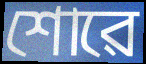
শোৱে